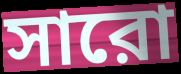
সারো